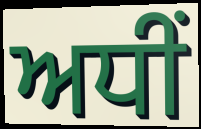
ਅਧੀਂ